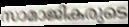
സാമാജികരുടെ